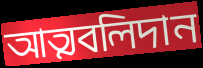
আত্মবলিদান